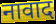
नावाद